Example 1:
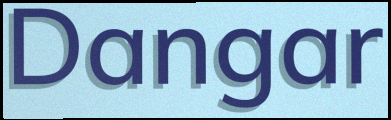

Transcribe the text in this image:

Dangar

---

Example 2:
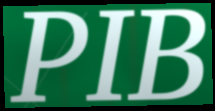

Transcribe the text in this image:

PIB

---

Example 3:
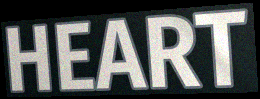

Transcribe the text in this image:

HEART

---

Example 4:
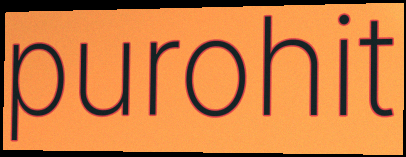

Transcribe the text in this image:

purohit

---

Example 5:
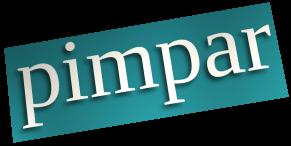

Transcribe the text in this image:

pimpar